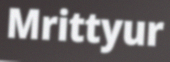
Mrittyur